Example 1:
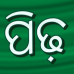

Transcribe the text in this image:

ପିଢ଼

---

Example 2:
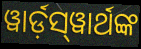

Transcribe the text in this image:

ୱାର୍ଡ଼ସ୍‌ୱାର୍ଥଙ୍କ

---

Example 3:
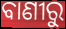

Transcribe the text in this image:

ବାଣୀରୁ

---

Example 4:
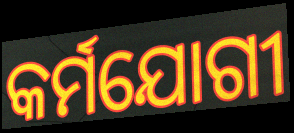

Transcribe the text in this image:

କର୍ମଯୋଗୀ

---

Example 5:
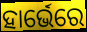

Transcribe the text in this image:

ହାର୍ଭେରେ